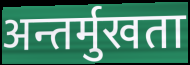
अन्तर्मुखता